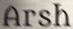
Arsh